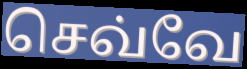
செவ்வே